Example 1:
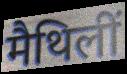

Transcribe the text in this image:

मैथिलीं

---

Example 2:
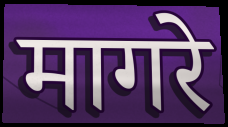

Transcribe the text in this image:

मागरे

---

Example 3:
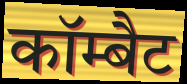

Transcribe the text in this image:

कॉम्बैट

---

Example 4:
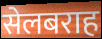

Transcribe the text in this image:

सेलबराह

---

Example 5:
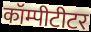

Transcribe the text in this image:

कॉम्पीटीटर